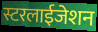
स्टरलाईजेशन